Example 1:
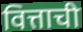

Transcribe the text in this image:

वित्ताची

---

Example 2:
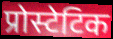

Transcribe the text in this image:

प्रोस्टेटिक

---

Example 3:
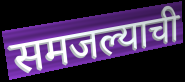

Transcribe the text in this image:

समजल्याची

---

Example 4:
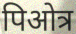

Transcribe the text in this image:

पिओत्र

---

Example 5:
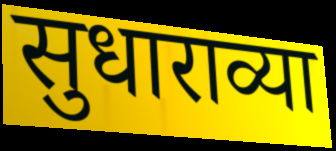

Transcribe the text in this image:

सुधाराव्या